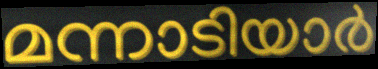
മന്നാടിയാർ